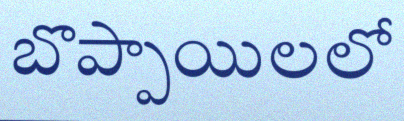
బొప్పాయిలలో